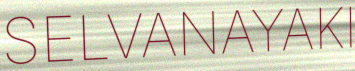
SELVANAYAKI